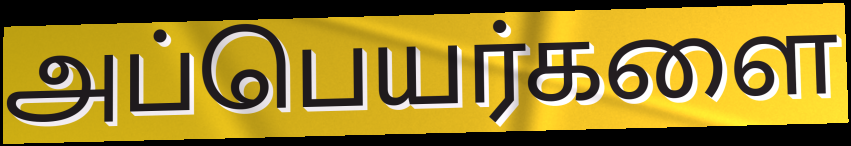
அப்பெயர்களை